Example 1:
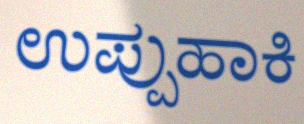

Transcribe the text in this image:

ಉಪ್ಪುಹಾಕಿ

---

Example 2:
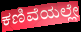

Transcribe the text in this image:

ಕಣಿವೆಯಲ್ಲೇ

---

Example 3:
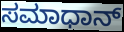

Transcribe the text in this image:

ಸಮಾಧಾನ್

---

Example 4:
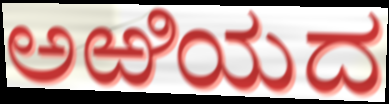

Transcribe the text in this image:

ಅಱಿಯದ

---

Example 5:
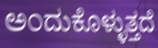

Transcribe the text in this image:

ಅಂದುಕೊಳ್ಳುತ್ತದೆ